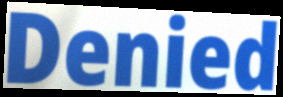
Denied